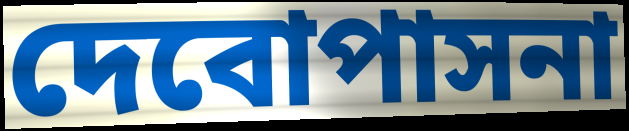
দেবোপাসনা